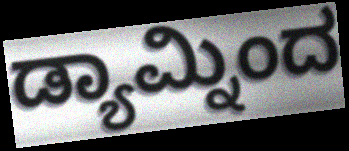
ಡ್ಯಾಮ್ನಿಂದ